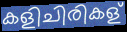
കളിചിരികള്